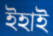
ইহাই